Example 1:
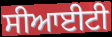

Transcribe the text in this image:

ਸੀਆਈਟੀ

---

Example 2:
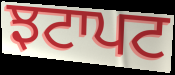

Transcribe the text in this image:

ਝਟਾਪਟ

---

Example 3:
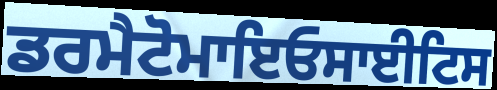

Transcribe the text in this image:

ਡਰਮੈਟੋਮਾਇਓਸਾਈਟਿਸ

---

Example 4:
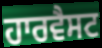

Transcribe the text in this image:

ਹਾਰਵੈਸਟ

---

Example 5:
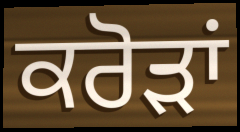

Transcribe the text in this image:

ਕਰੋੜਾਂ